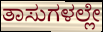
ತಾಸುಗಳಲ್ಲೇ